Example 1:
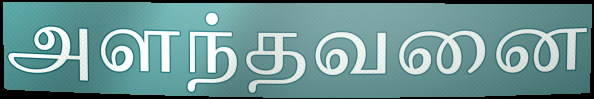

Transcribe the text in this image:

அளந்தவனை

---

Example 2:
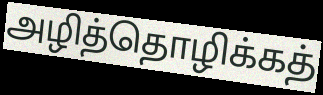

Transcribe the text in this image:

அழித்தொழிக்கத்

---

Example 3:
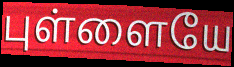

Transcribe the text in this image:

புள்ளையே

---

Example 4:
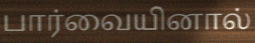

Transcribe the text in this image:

பார்வையினால்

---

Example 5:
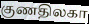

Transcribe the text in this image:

குணதிலகா